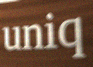
uniq